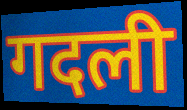
गदली